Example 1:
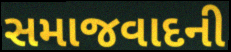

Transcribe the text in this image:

સમાજવાદની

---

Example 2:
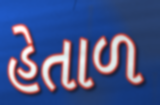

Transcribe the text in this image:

હેતાળ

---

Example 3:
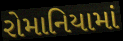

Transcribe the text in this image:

રોમાનિયામાં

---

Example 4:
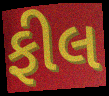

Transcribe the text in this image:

ફીલ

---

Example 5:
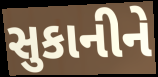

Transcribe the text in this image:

સુકાનીને